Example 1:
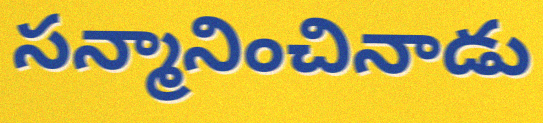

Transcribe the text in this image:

సన్మానించినాడు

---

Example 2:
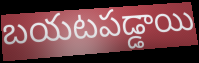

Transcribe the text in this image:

బయటపడ్డాయి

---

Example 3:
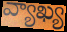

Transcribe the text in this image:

వ్యాఖ్య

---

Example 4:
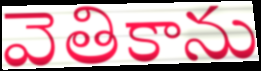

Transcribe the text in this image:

వెతికాను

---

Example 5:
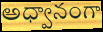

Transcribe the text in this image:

అధ్వానంగా